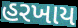
હરખાય